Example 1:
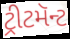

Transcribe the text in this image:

ટ્રીટમૅન્ટ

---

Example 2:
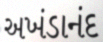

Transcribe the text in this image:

અખંડાનંદ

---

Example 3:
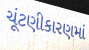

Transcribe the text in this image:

ચૂંટણીકારણમાં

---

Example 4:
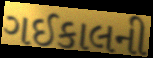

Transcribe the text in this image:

ગઈકાલની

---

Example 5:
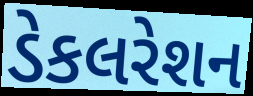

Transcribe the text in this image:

ડેકલરેશન